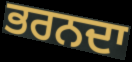
ਭਰਨਦਾ